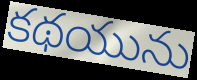
కథయును